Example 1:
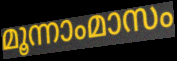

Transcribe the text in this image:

മൂന്നാംമാസം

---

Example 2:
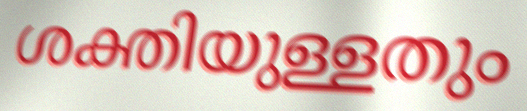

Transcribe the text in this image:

ശക്തിയുള്ളതും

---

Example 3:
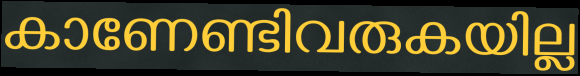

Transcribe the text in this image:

കാണേണ്ടിവരുകയില്ല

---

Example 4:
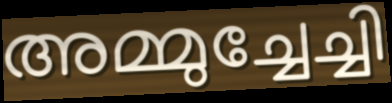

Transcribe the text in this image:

അമ്മുച്ചേച്ചി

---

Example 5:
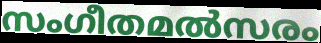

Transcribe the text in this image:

സംഗീതമൽസരം